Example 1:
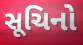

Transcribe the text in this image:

સૂચિનો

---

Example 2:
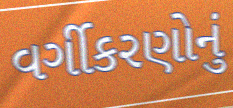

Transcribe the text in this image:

વર્ગીકરણોનું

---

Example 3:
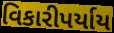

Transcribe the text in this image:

વિકારીપર્યાય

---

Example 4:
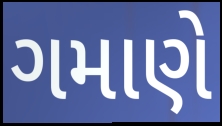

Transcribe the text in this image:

ગમાણે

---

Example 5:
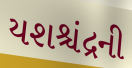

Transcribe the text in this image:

યશશ્ચંદ્રની